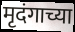
मृदंगाच्या